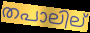
തപാലില്